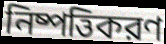
নিষ্পত্তিকরণ